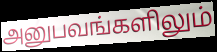
அனுபவங்களிலும்